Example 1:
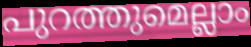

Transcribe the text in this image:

പുറത്തുമെല്ലാം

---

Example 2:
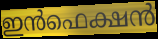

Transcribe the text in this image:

ഇൻഫെക്ഷൻ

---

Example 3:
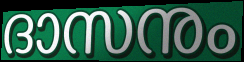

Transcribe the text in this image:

ദാസനും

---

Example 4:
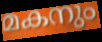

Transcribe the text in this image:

മകനും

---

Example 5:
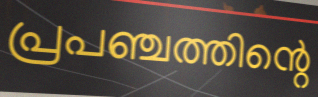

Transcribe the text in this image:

പ്രപഞ്ചത്തിന്റെ